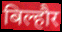
बिल्हौर